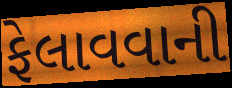
ફેલાવવાની